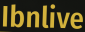
Ibnlive